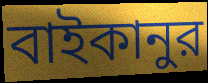
বাইকানুর